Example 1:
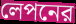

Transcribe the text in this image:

লেপনের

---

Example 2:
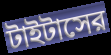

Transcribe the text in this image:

টাইটাসের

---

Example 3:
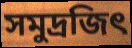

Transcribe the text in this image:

সমুদ্রজিৎ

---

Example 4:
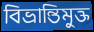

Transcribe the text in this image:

বিভ্রান্তিমুক্ত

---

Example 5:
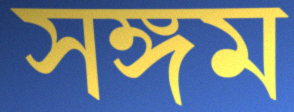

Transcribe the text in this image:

সঙ্গম